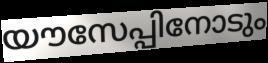
യൗസേപ്പിനോടും